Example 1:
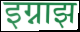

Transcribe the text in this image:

इग्नाझ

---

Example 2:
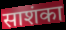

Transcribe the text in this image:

साशंका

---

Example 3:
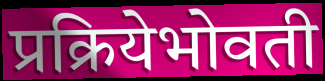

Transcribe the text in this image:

प्रक्रियेभोवती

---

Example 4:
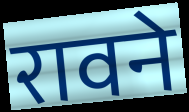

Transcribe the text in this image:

रावने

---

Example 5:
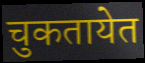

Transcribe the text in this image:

चुकतायेत